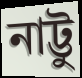
নাট্টু